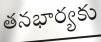
తనభార్యకు